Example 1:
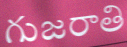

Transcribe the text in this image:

గుజరాతి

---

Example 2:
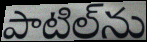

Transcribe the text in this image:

పాటిల్‌ను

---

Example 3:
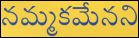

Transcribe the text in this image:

నమ్మకమేనని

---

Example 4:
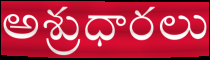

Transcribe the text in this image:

అశ్రుధారలు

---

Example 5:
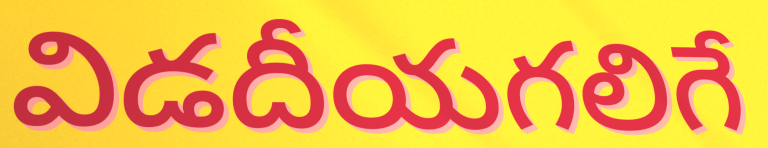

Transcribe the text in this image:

విడదీయగలిగే